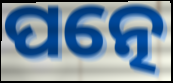
ପତ୍ନେ